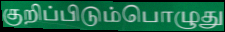
குறிப்பிடும்பொழுது